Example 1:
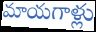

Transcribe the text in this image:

మాయగాళ్లు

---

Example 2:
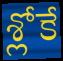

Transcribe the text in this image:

శ్లోకే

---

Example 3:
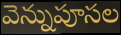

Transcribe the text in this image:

వెన్నుపూసల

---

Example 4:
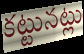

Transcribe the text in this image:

కట్టునట్లు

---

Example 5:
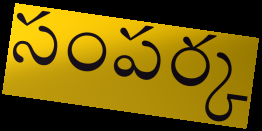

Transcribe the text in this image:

సంపర్క